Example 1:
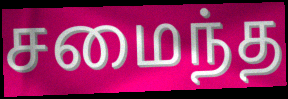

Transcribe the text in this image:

சமைந்த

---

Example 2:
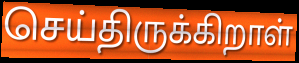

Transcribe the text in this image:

செய்திருக்கிறாள்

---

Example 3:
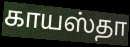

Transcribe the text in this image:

காயஸ்தா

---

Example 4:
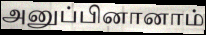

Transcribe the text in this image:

அனுப்பினானாம்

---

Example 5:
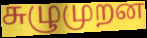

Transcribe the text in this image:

சுழுமுறன